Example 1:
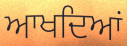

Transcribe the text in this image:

ਆਖਦਿਆਂ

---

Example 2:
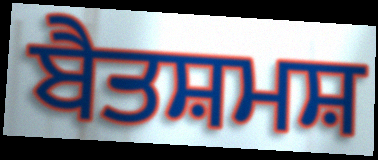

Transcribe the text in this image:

ਬੈਤਸ਼ਮਸ਼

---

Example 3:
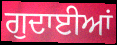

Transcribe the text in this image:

ਗੁਦਾਈਆਂ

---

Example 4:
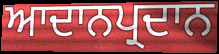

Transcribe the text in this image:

ਆਦਾਨਪ੍ਰਦਾਨ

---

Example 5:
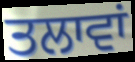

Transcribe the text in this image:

ਤਲਾਵਾਂ